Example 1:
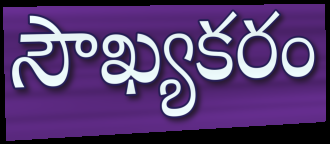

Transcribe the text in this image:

సౌఖ్యకరం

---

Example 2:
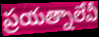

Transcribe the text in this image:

ప్రయత్నాలేవీ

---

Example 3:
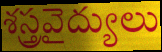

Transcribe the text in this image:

శస్త్రవైద్యులు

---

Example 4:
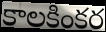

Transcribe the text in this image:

కాలకింకర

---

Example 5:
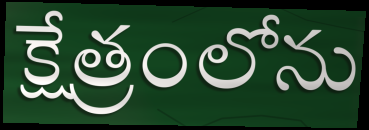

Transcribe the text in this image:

క్షేత్రంలోను